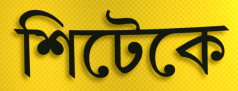
শিটেকে